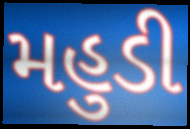
મહુડી